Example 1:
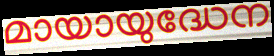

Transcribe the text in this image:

മായായുദ്ധേന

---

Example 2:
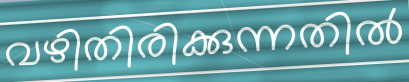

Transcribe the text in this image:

വഴിതിരിക്കുന്നതിൽ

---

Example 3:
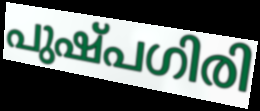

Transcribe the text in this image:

പുഷ്പഗിരി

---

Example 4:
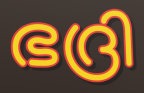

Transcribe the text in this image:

ഭദ്രി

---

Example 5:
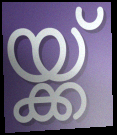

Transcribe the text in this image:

യ്ക്ക്